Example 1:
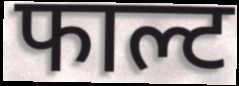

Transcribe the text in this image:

फाल्ट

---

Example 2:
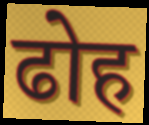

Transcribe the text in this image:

ढोह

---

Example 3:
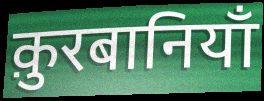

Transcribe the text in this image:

क़ुरबानियाँ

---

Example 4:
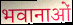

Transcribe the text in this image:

भवानाओं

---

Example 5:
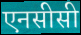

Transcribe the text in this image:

एनसीसी